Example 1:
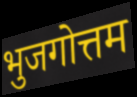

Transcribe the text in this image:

भुजगोत्तम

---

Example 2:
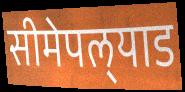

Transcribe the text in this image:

सीमेपल्याड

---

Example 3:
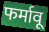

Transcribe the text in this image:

फर्मावू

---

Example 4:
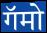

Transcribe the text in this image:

गॅमो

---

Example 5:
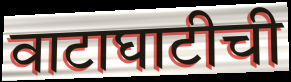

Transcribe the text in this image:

वाटाघाटीची